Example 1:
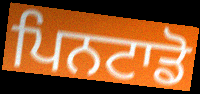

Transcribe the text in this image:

ਪਿਨਟਾਡੋ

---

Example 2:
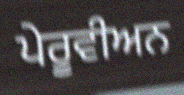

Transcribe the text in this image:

ਪੇਰੂਵੀਅਨ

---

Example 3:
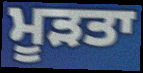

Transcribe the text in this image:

ਮੂੜਤਾ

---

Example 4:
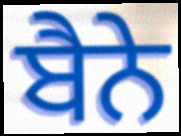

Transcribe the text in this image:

ਬੈਨੇ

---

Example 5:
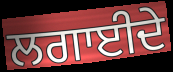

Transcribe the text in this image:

ਲਗਾਈਦੇ